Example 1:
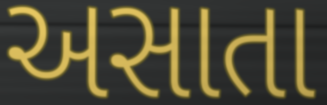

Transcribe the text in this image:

અસાતા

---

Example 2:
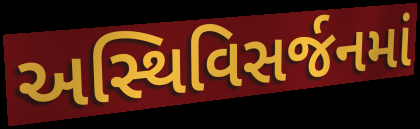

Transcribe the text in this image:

અસ્થિવિસર્જનમાં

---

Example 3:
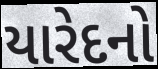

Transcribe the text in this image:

યારેદનો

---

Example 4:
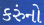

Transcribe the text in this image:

કરુંનો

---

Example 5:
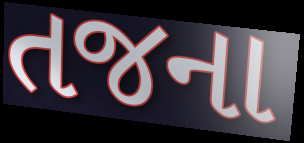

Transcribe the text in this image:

તજના